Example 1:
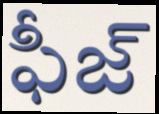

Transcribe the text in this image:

ఫీజ్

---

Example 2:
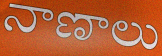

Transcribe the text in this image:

నాణాలు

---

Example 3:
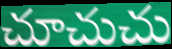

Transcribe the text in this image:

చూచుచు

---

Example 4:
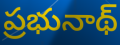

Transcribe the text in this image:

ప్రభునాథ్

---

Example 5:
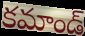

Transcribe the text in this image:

కమాండ్